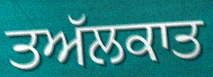
ਤਅੱਲਕਾਤ